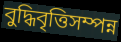
বুদ্ধিবৃত্তিসম্পন্ন